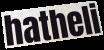
hatheli